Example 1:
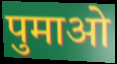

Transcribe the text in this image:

पुमाओ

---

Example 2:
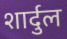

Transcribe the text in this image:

शार्दुल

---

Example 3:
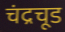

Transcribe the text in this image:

चंद्रचूड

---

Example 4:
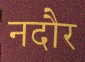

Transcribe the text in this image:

नदौर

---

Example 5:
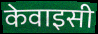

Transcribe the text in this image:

केवाइसी